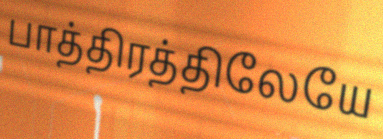
பாத்திரத்திலேயே